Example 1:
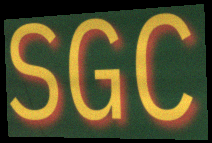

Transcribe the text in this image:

SGC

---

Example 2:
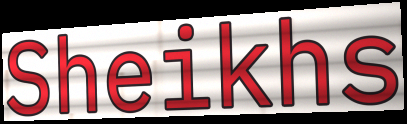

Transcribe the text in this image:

Sheikhs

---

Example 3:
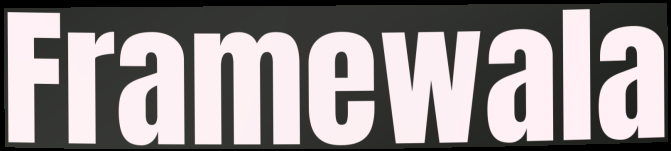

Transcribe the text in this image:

Framewala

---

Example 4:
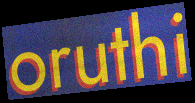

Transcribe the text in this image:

oruthi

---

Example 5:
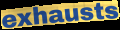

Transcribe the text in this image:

exhausts